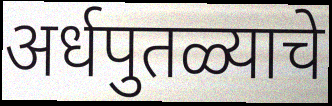
अर्धपुतळ्याचे